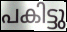
പകിട്ടു